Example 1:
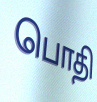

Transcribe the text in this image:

பொதி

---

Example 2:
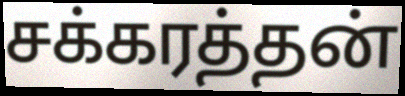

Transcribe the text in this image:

சக்கரத்தன்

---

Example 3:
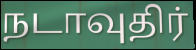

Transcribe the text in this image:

நடாவுதிர்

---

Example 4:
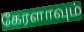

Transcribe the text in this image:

கேரளாவும்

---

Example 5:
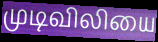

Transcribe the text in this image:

முடிவிலியை